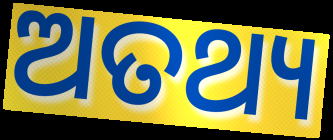
ଅତଥ୍ୟ